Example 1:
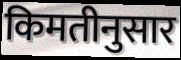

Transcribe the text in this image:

किमतीनुसार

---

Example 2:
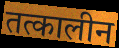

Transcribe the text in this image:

तत्कालीन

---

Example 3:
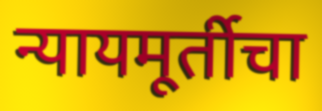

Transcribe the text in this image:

न्यायमूर्तीचा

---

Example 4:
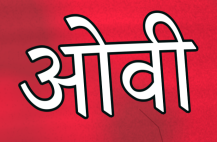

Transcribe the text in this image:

ओवी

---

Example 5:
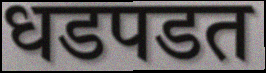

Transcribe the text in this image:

धडपडत